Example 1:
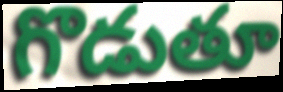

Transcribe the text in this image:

గొడుతూ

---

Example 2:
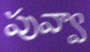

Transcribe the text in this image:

పువ్వా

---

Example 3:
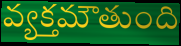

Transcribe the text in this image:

వ్యక్తమౌతుంది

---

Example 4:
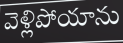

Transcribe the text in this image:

వెళ్లిపోయాను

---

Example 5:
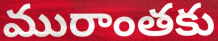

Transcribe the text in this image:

మురాంతకు